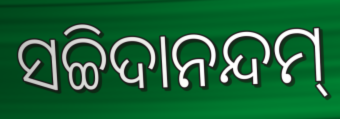
ସଚ୍ଚିଦାନନ୍ଦମ୍